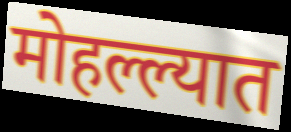
मोहल्ल्यात